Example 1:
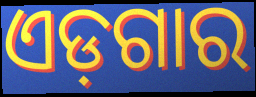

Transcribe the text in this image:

ଏଡ଼ଗାର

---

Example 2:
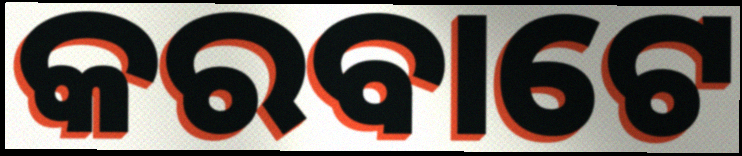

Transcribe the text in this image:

କରବାଟେ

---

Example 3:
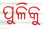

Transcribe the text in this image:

ପୁଳିକୁ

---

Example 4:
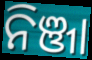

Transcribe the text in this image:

ନିଞ୍ଜା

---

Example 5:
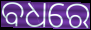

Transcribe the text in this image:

ବଧରେ